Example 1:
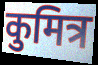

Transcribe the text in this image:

कुमित्र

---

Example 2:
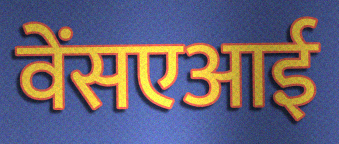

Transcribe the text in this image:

वेंसएआई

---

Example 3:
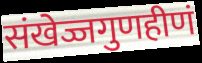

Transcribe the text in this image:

संखेज्जगुणहीणं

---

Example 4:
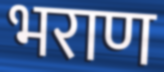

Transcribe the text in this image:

भराण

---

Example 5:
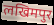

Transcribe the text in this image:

लखिमपुर